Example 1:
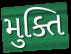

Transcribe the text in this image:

મુક્તિ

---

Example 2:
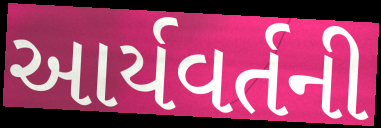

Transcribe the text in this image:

આર્યવર્તની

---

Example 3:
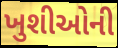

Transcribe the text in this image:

ખુશીઓની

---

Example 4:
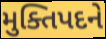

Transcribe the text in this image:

મુક્તિપદને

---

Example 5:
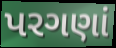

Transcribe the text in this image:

પરગણાં